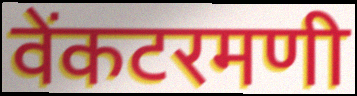
वेंकटरमणी